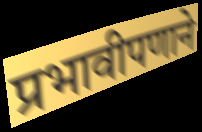
प्रभावीपणाने